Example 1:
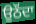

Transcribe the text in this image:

ਉਠੌਂਦਾ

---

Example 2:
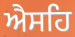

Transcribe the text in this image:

ਐਸਹਿ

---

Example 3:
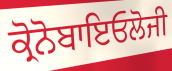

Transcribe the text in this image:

ਕ੍ਰੋਨੋਬਾਇਓਲੋਜੀ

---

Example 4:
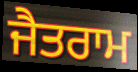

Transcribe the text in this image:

ਜੈਤਰਾਮ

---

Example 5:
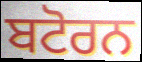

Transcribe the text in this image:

ਬਟੋਰਨ